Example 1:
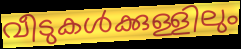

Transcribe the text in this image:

വീടുകൾക്കുള്ളിലും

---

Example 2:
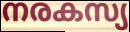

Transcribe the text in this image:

നരകസ്യ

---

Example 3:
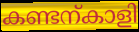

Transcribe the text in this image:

കണ്ടന്കാളി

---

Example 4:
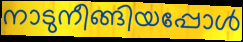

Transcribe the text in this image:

നാടുനീങ്ങിയപ്പോൾ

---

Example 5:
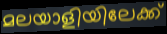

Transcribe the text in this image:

മലയാളിയിലേക്ക്